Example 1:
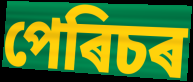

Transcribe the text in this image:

পেৰিচৰ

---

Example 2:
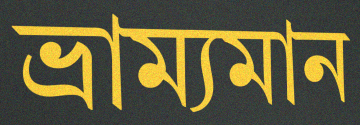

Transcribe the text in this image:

ভ্ৰাম্যমান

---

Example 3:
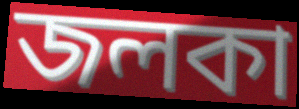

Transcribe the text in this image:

জলকা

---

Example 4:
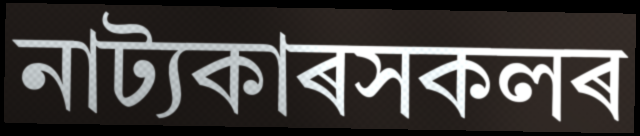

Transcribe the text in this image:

নাট্যকাৰসকলৰ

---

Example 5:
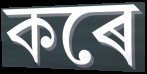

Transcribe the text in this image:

কৰে